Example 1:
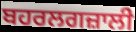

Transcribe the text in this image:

ਬਹਰਲਗਜ਼ਾਲੀ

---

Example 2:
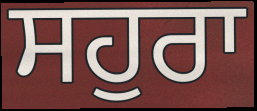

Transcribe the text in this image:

ਸਹੁਰਾ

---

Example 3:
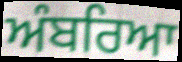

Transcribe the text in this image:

ਅੰਬਰਿਆ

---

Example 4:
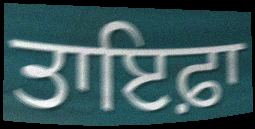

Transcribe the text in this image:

ਤਾਇਫ਼ਾ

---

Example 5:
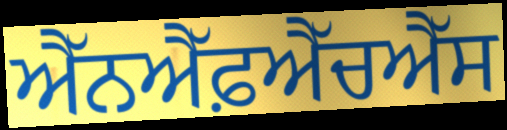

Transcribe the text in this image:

ਐੱਨਐੱਫ਼ਐੱਚਐੱਸ